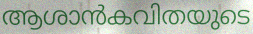
ആശാൻകവിതയുടെ